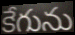
కేగును